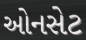
ઓનસેટ